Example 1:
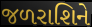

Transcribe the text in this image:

જળરાશિને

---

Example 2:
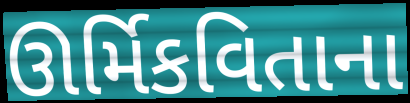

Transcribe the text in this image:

ઊર્મિકવિતાના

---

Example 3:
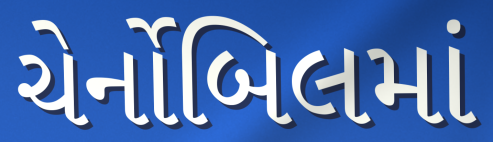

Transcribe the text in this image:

ચેર્નોબિલમાં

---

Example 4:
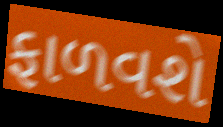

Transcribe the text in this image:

ફાળવશે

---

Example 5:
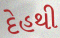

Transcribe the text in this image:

દેહથી